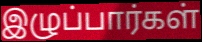
இழுப்பார்கள்